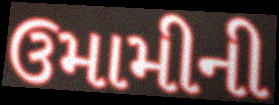
ઉમામીની